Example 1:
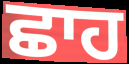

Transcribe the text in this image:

ਛਾਹ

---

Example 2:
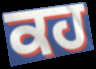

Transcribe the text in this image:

ਕਹ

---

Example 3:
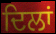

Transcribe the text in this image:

ਦਿਲਾਂ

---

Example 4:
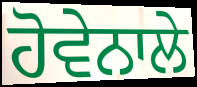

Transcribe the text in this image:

ਹੋਵੇਨਾਲੇ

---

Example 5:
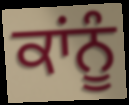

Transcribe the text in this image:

ਕਾਂਨੂੰ